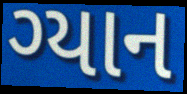
ગ્યાન